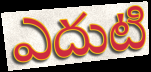
ఎదుటి